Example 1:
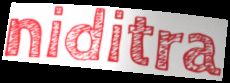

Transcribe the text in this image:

niditra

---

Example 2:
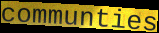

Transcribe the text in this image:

communties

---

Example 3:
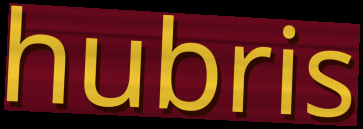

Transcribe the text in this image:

hubris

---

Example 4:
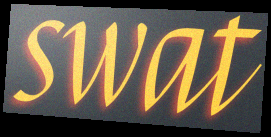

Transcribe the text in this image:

swat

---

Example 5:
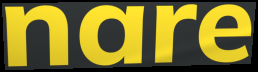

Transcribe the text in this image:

nare